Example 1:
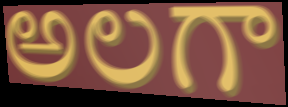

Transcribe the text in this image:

అలగా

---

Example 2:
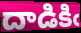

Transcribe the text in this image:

దాడికిఁ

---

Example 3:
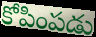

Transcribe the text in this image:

కోపింపడు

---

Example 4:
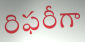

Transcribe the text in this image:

రిఫరీగా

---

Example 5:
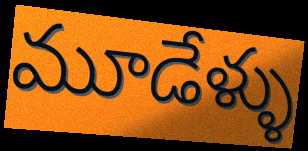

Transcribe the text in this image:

మూడేళ్ళు